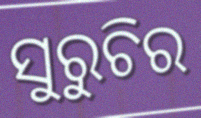
ସୁରୁଚିର